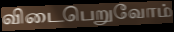
விடைபெறுவோம்